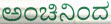
ಅಂಚಿನಿಂದ